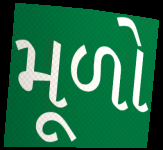
મૂળો